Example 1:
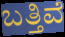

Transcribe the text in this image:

ಬತ್ತಿವೆ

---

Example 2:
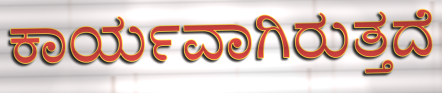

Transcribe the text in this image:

ಕಾರ್ಯವಾಗಿರುತ್ತದೆ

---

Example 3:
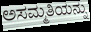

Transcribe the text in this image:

ಅಸಮ್ಮತಿಯನ್ನು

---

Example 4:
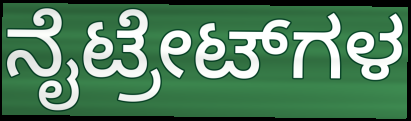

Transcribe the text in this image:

ನೈಟ್ರೇಟ್‌ಗಳ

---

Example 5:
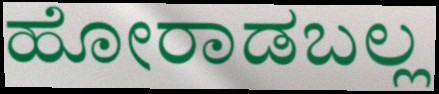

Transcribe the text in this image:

ಹೋರಾಡಬಲ್ಲ